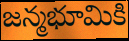
జన్మభూమికి